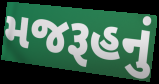
મજરૂહનું